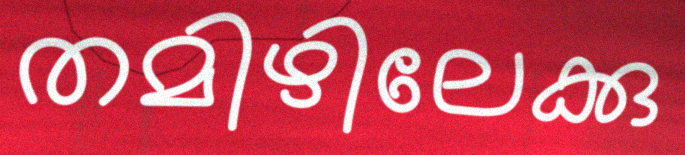
തമിഴിലേക്കു